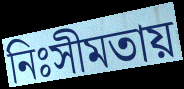
নিঃসীমতায়